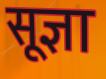
सूज्ञा